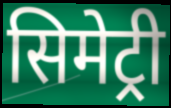
सिमेट्री